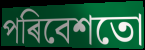
পৰিবেশতো